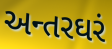
અન્તરઘરં